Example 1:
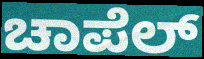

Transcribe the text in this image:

ಚಾಪೆಲ್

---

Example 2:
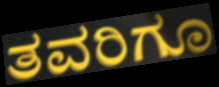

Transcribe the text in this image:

ತವರಿಗೂ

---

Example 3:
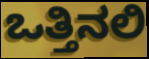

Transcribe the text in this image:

ಒತ್ತಿನಲಿ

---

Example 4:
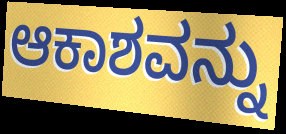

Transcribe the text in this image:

ಆಕಾಶವನ್ನು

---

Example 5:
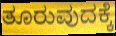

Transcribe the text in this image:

ತೂರುವುದಕ್ಕೆ